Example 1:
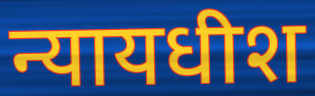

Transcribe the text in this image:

न्यायधीश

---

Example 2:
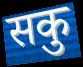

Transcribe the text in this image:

सकु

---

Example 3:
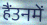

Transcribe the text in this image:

हैंउनमें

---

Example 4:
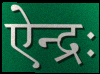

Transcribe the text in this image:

ऐन्द्रः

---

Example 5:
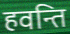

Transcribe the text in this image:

हवन्ति